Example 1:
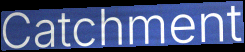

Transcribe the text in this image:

Catchment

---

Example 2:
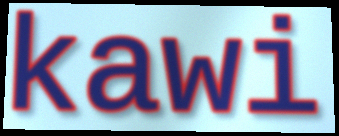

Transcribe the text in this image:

kawi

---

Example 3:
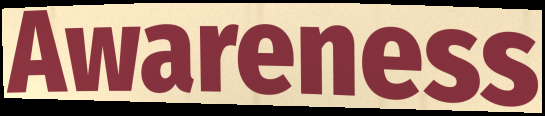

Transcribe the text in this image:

Awareness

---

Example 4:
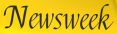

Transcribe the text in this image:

Newsweek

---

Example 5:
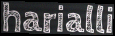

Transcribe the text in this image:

harialli